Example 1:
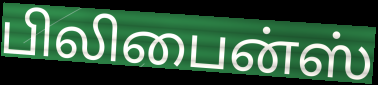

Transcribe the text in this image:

பிலிபைன்ஸ்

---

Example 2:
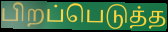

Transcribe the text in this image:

பிறப்பெடுத்த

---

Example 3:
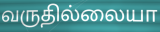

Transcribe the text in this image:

வருதில்லையா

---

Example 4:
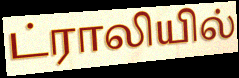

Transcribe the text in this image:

ட்ராலியில்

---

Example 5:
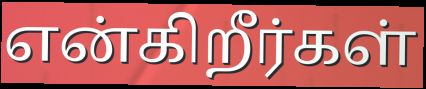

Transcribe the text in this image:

என்கிறீர்கள்